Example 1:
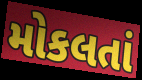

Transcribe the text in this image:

મોકલતાં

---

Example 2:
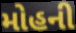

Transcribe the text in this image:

મોહની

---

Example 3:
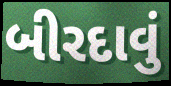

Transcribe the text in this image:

બીરદાવું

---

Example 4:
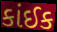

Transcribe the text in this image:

કાંઈક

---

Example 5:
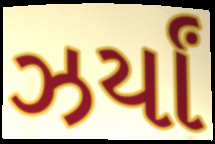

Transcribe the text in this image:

ઝર્યાં